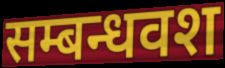
सम्बन्धवश